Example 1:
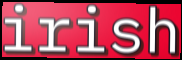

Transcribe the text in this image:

irish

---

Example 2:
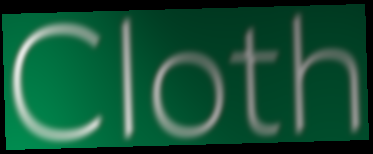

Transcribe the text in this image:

Cloth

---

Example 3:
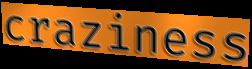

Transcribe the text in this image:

craziness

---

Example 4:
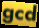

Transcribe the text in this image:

gcd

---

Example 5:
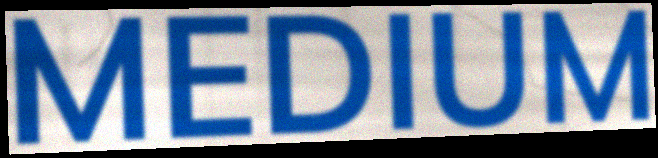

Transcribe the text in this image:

MEDIUM